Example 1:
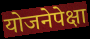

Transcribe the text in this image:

योजनेपेक्षा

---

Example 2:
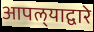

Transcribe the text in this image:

आपल्याद्वारे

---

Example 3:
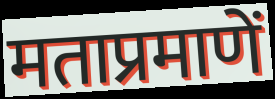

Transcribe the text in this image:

मताप्रमाणें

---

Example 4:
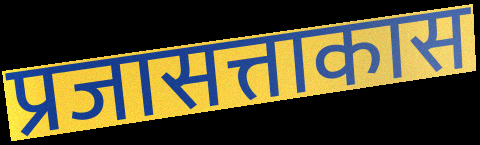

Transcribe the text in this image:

प्रजासत्ताकास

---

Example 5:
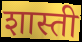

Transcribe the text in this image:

शास्ती